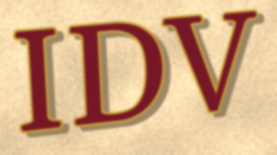
IDV